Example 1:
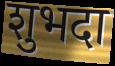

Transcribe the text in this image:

शुभदा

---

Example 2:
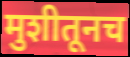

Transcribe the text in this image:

मुशीतूनच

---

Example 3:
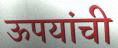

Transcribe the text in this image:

ऊपयांची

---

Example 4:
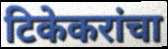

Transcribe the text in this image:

टिकेकरांचा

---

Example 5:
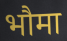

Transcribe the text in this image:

भौमा